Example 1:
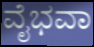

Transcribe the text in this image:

ವೈಭವಾ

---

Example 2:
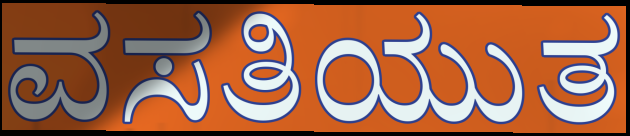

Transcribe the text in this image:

ವಸತಿಯುತ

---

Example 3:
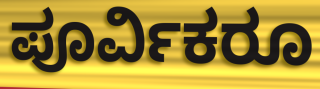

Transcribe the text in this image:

ಪೂರ್ವಿಕರೂ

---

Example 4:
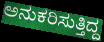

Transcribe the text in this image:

ಅನುಕರಿಸುತ್ತಿದ್ದ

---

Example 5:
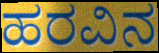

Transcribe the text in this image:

ಹರವಿನ